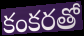
కంకరతో